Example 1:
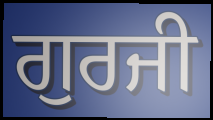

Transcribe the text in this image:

ਗੁਰਜੀ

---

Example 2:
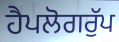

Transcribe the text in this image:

ਹੈਪਲੋਗਰੁੱਪ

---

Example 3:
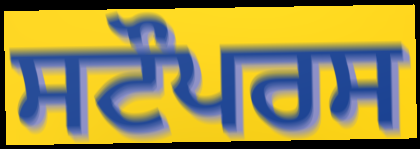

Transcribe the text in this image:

ਸਟੌਪਰਸ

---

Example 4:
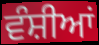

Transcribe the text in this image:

ਵੰਸ਼ੀਆਂ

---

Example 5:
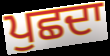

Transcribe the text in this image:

ਪੁਛਦਾ